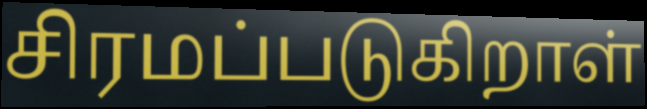
சிரமப்படுகிறாள்